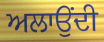
ਅਲਾਉਂਦੀ